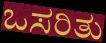
ಒಸರಿತು